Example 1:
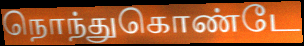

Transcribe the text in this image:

நொந்துகொண்டே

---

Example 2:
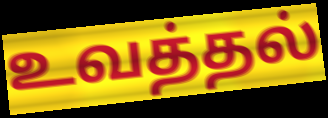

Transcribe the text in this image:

உவத்தல்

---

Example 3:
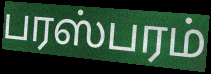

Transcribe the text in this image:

பரஸ்பரம்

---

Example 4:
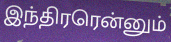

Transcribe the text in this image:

இந்திரரென்னும்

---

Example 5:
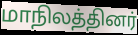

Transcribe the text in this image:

மாநிலத்தினர்